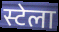
स्टेला